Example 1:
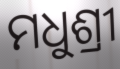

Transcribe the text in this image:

ମଧୁଶ୍ରୀ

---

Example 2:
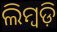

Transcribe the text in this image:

ଲିମ୍ବଡ଼ି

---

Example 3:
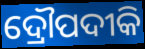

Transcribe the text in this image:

ଦ୍ରୌପଦୀକି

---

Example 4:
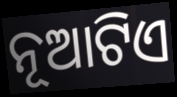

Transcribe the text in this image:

ନୂଆଟିଏ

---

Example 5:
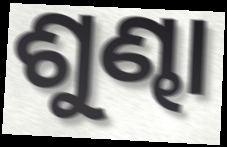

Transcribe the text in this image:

ଶୁଣ୍ଢା